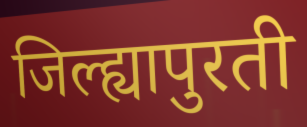
जिल्ह्यापुरती